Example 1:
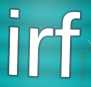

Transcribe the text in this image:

irf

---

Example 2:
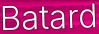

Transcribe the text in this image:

Batard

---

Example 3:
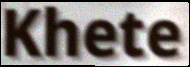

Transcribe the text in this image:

Khete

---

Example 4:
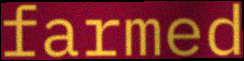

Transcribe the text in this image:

farmed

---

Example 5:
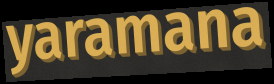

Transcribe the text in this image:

yaramana